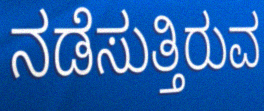
ನಡೆಸುತ್ತಿರುವ